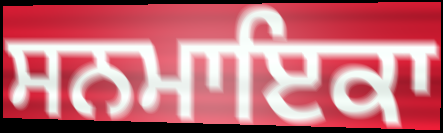
ਸਨਮਾਇਕਾ